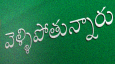
వెళ్ళిపోతున్నారు